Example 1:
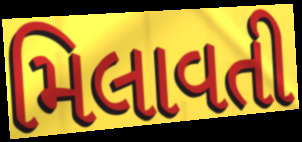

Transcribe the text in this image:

મિલાવતી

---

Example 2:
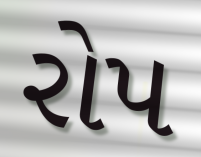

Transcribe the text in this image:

રોપ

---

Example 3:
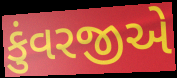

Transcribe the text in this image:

કુંવરજીએ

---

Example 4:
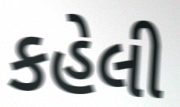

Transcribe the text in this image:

કહેલી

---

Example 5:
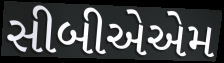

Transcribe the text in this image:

સીબીએએમ